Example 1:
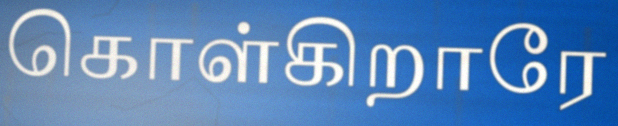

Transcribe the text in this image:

கொள்கிறாரே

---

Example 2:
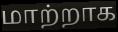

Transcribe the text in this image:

மாற்றாக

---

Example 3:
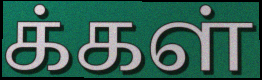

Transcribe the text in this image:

க்கள்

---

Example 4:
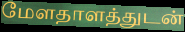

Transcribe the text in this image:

மேளதாளத்துடன்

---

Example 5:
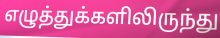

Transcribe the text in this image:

எழுத்துக்களிலிருந்து